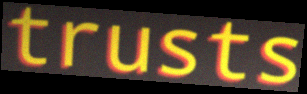
trusts